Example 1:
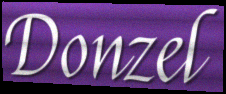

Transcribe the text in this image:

Donzel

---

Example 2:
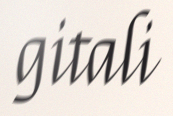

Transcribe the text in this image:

gitali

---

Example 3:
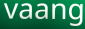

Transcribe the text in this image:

vaang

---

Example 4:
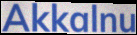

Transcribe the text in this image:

Akkalnu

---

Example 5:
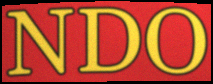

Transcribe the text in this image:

NDO